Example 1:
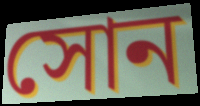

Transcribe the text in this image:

সোন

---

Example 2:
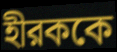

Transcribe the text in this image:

হীরককে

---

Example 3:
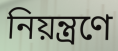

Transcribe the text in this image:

নিয়ন্ত্রণে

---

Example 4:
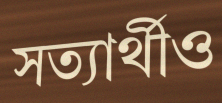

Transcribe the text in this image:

সত্যার্থীও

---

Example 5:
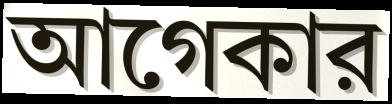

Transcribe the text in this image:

আগেকার